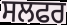
ਸਲਫਰ